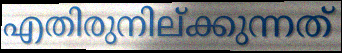
എതിരുനില്ക്കുന്നത്